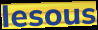
Iesous